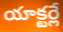
యాక్టర్లే